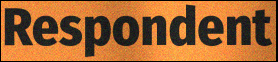
Respondent